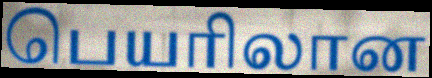
பெயரிலான